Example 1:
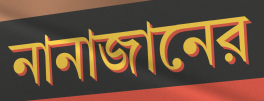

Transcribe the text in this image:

নানাজানের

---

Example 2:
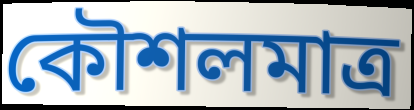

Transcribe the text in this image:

কৌশলমাত্র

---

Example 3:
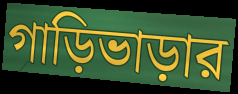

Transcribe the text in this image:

গাড়িভাড়ার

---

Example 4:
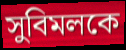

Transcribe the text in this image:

সুবিমলকে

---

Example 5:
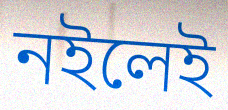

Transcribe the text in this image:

নইলেই